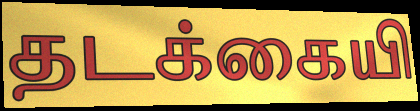
தடக்கையி